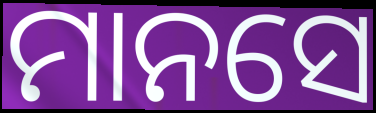
ମାନସେ